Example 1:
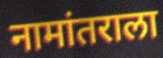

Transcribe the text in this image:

नामांतराला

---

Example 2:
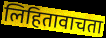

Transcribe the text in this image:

लिहितावाचता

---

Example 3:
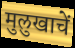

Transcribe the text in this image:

मुलुखाचें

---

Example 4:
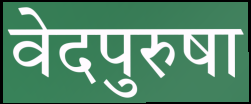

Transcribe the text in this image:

वेदपुरुषा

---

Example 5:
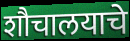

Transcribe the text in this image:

शौचालयाचे